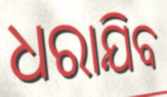
ଧରାଯିବ